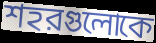
শহরগুলোকে